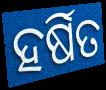
ହର୍ଷିତ